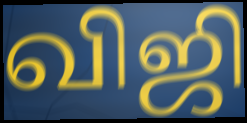
விஜி